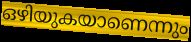
ഒഴിയുകയാണെന്നും